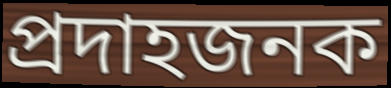
প্রদাহজনক